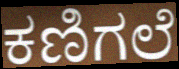
ಕಣಿಗಲೆ